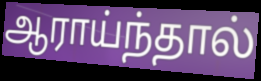
ஆராய்ந்தால்